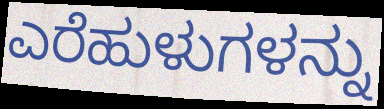
ಎರೆಹುಳುಗಳನ್ನು